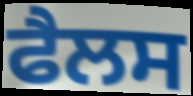
ਫੈਲਸ